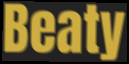
Beaty